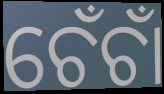
ଚେଁଚାଁ